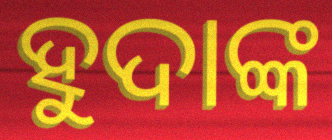
ହୁଦାଙ୍କ